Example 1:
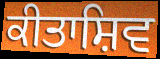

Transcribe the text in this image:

ਕੀਤਾਸ਼ਿਵ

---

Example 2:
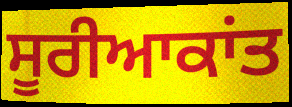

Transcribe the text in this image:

ਸੂਰੀਆਕਾਂਤ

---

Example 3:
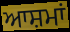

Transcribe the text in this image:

ਆਸ਼ਮਾਂ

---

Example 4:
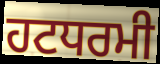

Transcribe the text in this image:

ਹਟਧਰਮੀ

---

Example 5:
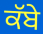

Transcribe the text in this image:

ਕੱਬੇ